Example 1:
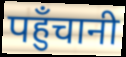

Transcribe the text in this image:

पहुँचानी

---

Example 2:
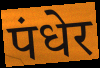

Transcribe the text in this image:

पंधेर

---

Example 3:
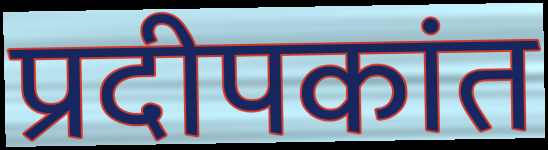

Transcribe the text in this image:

प्रदीपकांत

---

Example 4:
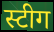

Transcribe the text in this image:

स्टीग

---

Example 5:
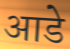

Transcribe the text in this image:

आडे